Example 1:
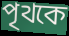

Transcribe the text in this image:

পৃথকে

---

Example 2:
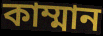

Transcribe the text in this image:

কাম্মান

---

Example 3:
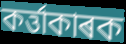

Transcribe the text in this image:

কৰ্ত্তাকাৰক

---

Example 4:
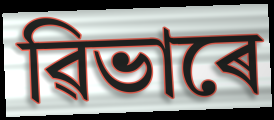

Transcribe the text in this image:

ৱিভাৰে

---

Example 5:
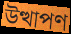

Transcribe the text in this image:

উত্থাপণ